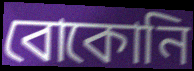
বোকোনি